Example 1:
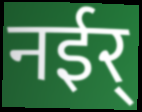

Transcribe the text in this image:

नईर्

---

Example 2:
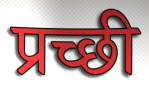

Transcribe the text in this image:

प्रच्छी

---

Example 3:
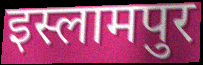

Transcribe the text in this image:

इस्लामपुर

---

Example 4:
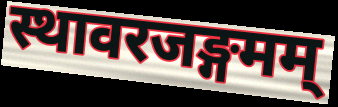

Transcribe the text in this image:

स्थावरजङ्गमम्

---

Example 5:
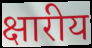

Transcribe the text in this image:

क्षारीय